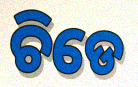
ଚିଡେ